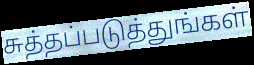
சுத்தப்படுத்துங்கள்